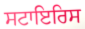
ਸਟਾਇਰਿਸ